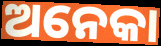
ଅନେକା